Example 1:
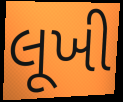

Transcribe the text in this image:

લૂખી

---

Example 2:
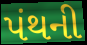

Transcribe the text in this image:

પંથની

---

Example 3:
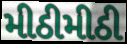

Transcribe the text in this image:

મીઠીમીઠી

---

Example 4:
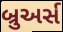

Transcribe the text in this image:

બ્રુઅર્સ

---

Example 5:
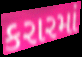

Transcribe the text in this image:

કરારમાં